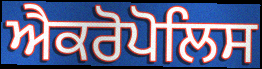
ਐਕਰੋਪੋਲਿਸ